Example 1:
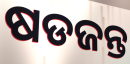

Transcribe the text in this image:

ଷଡଜନ୍ତ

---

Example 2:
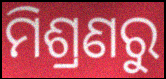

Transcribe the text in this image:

ମିଶ୍ରଣରୁ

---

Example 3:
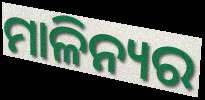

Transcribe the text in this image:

ମାଳିନ୍ୟର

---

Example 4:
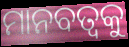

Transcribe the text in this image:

ମାନବତ୍ବକୁ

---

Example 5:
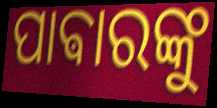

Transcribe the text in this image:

ପାଵାରଙ୍କୁ